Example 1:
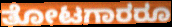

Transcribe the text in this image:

ತೋಟಗಾರರೂ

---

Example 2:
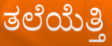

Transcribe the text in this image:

ತಲೆಯೆತ್ತಿ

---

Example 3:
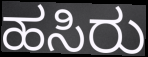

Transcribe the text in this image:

ಹಸಿರು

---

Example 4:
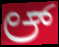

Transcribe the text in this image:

ಆ್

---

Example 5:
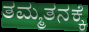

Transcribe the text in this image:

ತಮ್ಮತನಕ್ಕೆ